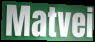
Matvei